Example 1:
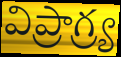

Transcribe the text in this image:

విప్రాగ్ర్య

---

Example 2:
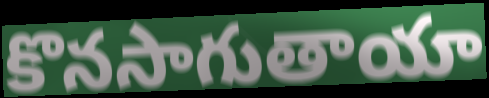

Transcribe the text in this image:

కొనసాగుతాయా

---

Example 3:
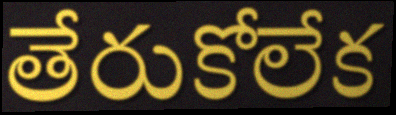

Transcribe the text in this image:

తేరుకోలేక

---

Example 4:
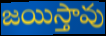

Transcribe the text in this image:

జయిస్తావు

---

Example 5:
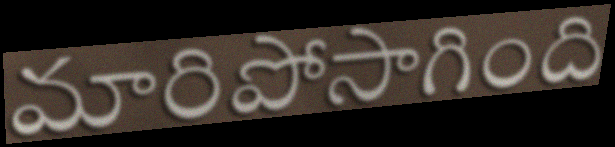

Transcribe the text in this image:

మారిపోసాగింది